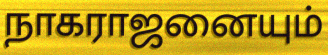
நாகராஜனையும்